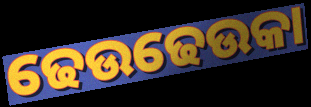
ଢେଉଢେଉକା